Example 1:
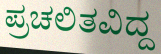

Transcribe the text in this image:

ಪ್ರಚಲಿತವಿದ್ದ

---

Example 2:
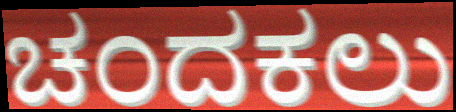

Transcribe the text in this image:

ಚಂದಕಲು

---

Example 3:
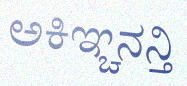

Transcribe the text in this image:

ಅಕಿಞ್ಚನನ್ತಿ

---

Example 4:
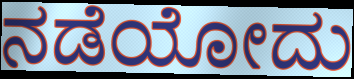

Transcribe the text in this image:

ನಡೆಯೋದು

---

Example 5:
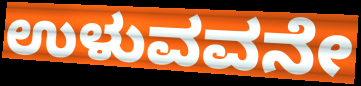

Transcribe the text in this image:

ಉಳುವವನೇ